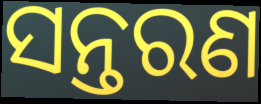
ସନ୍ତରଣ